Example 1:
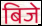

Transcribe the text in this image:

बिजे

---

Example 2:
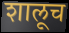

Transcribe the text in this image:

शालूच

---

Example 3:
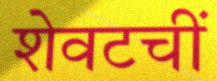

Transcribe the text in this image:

शेवटचीं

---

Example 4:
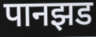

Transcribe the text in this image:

पानझड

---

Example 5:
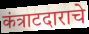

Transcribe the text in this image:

कंत्राटदाराचे